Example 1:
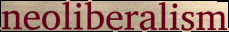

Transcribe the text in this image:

neoliberalism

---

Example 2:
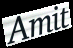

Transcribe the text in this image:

Amit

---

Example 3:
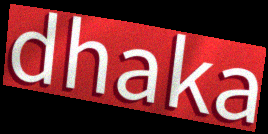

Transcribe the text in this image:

dhaka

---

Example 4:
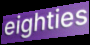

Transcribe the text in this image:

eighties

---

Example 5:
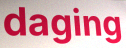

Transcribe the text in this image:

daging